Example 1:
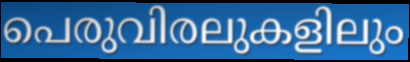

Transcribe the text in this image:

പെരുവിരലുകളിലും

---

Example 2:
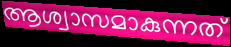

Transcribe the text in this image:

ആശ്വാസമാകുന്നത്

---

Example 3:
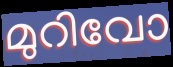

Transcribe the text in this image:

മുറിവോ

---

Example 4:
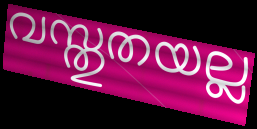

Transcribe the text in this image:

വസ്തുതയല്ല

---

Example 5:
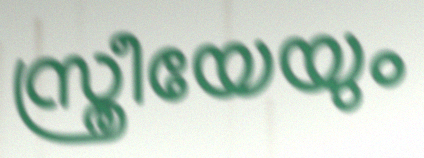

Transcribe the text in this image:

സ്ത്രീയേയും